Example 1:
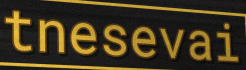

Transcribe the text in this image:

tnesevai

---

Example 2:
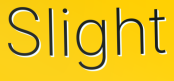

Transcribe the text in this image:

Slight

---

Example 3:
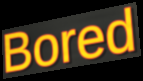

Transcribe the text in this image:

Bored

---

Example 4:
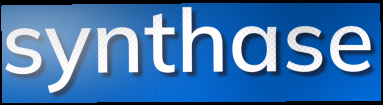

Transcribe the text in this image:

synthase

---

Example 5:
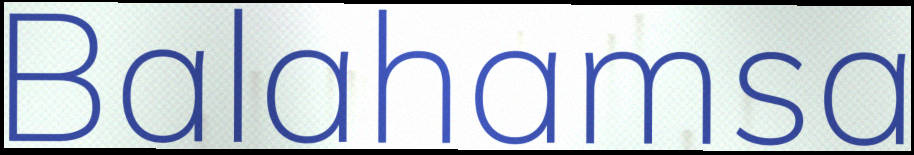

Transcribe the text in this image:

Balahamsa